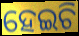
ହେଇଚି